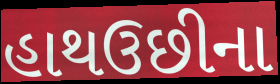
હાથઉછીના